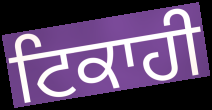
ਟਿਕਾਹੀ